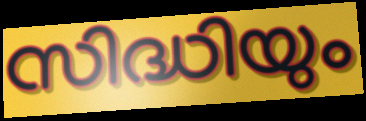
സിദ്ധിയും